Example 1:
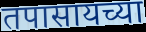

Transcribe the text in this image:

तपासायच्या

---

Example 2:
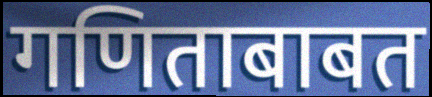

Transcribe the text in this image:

गणिताबाबत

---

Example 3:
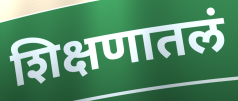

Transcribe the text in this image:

शिक्षणातलं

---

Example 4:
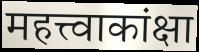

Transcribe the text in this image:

महत्त्वाकांक्षा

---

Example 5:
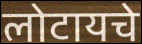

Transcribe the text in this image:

लोटायचे